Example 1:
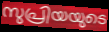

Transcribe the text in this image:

സുപ്രിയയുടെ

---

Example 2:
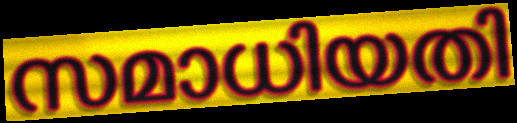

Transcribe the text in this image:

സമാധിയതി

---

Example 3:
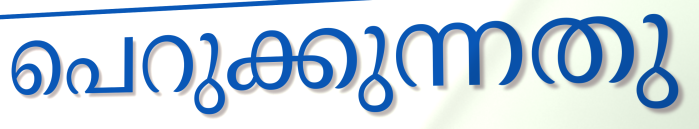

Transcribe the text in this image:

പെറുക്കുന്നതു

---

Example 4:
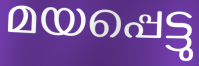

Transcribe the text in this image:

മയപ്പെട്ടു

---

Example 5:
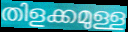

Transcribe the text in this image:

തിളക്കമുള്ള